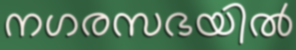
നഗരസഭയിൽ